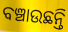
ବଞ୍ଚାଉଛନ୍ତି